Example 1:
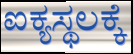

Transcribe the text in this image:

ಐಕ್ಯಸ್ಥಲಕ್ಕೆ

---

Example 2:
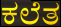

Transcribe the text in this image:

ಕಲೆತ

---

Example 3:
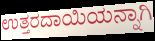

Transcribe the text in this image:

ಉತ್ತರದಾಯಿಯನ್ನಾಗಿ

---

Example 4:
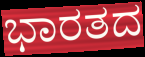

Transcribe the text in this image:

ಭಾರತದ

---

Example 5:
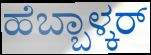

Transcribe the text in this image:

ಹೆಬ್ಬಾಳ್ಕರ್